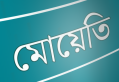
মোয়েতি